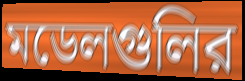
মডেলগুলির